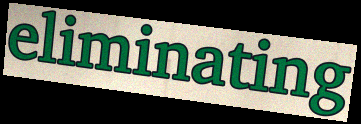
eliminating